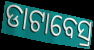
ଡାଟାବେସ୍ର